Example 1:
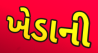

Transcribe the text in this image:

ખેડાની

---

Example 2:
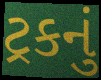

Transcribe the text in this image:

ટ્રકનું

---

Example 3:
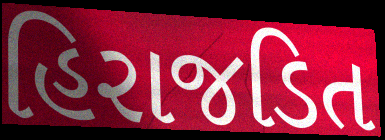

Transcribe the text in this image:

હિરાજડિત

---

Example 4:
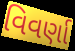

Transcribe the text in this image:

વિવર્ણા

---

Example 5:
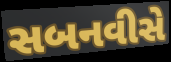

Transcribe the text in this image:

સબનવીસે